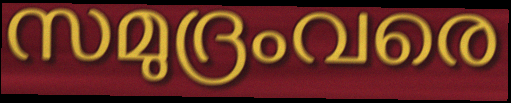
സമുദ്രംവരെ